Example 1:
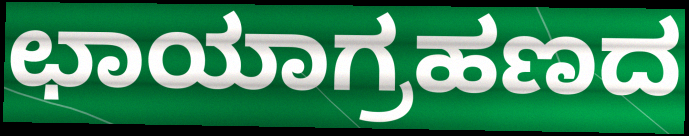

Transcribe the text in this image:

ಛಾಯಾಗ್ರಹಣದ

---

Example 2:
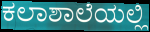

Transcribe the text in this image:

ಕಲಾಶಾಲೆಯಲ್ಲಿ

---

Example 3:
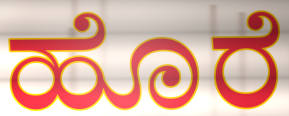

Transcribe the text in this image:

ಹೊರೆ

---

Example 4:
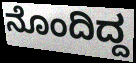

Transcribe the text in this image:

ನೊಂದಿದ್ದ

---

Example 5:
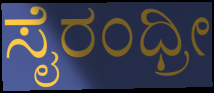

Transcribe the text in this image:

ಸೈರಂಧ್ರೀ